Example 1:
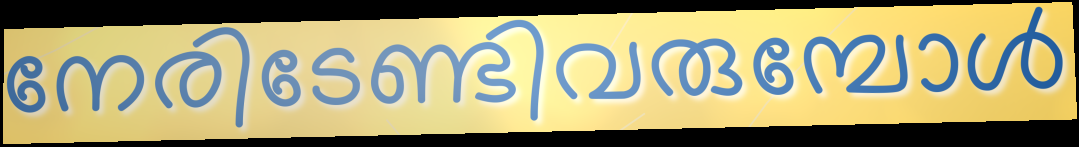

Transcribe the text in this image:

നേരിടേണ്ടിവരുമ്പോൾ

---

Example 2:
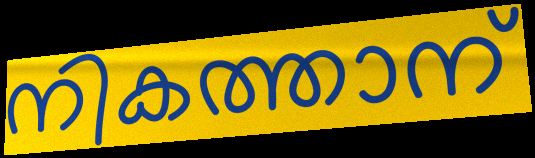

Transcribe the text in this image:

നികത്താന്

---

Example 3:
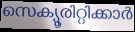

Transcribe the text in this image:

സെക്യൂരിറ്റിക്കാർ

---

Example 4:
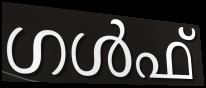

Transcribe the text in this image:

ഗൾഫ്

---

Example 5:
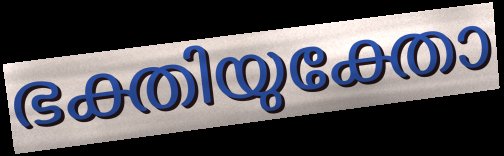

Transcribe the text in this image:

ഭക്തിയുക്തോ